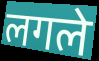
लगले